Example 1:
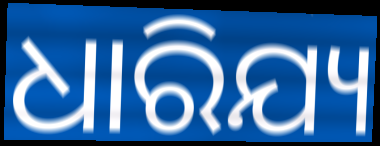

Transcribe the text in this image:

ଧାରିଯ୍ୟ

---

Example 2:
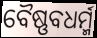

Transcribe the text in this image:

ବୈଷ୍ଣବଧର୍ମ୍ମ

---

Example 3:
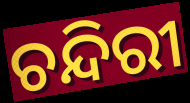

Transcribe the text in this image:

ଚନ୍ଦିରୀ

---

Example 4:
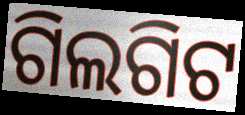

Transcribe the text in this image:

ଗିଲଗିଟ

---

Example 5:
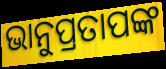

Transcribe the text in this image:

ଭାନୁପ୍ରତାପଙ୍କ